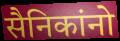
सैनिकांनो